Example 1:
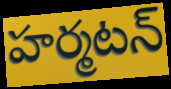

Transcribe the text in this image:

హర్మటన్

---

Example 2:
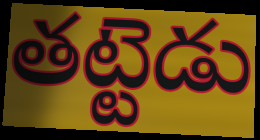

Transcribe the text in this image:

తట్టెడు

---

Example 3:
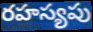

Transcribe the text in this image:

రహస్యపు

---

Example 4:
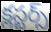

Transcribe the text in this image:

క్లస్టర్స్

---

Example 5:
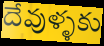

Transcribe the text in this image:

దేవుళ్ళకు